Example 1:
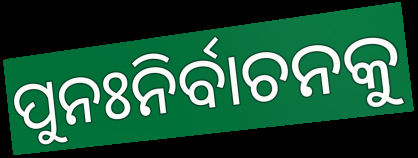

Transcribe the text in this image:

ପୁନଃନିର୍ବାଚନକୁ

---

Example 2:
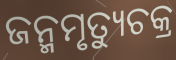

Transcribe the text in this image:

ଜନ୍ମମୃତ୍ୟୁଚକ୍ର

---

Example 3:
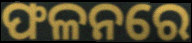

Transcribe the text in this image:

ଫଳନରେ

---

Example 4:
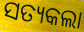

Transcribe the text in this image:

ସତ୍ୟକଲା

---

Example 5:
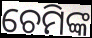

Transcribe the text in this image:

ଚେମିଙ୍କ